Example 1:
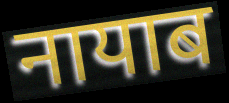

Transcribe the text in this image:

नायाब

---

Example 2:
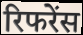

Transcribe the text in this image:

रिफरेंस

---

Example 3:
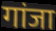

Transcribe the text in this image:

गांजा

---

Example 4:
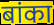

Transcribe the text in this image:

बांका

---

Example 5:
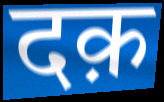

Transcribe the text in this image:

दक़